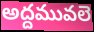
అద్దమువలె